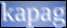
kapag